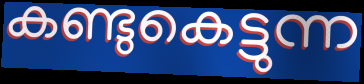
കണ്ടുകെട്ടുന്ന